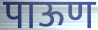
पाऊण